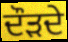
ਦੌੜਦੇ